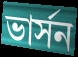
ভার্সন